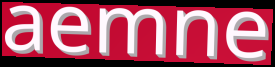
aemne